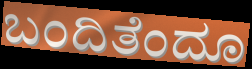
ಬಂದಿತೆಂದೂ